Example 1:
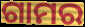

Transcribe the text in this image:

ଗାମର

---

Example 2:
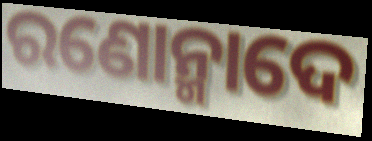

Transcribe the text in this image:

ରଣୋନ୍ମାଦେ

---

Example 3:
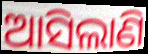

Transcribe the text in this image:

ଆସିଲାଣି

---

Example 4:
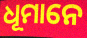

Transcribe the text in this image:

ଧୂମାନେ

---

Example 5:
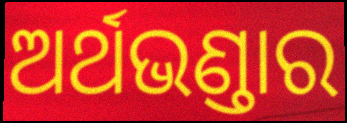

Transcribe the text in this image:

ଅର୍ଥଭଣ୍ଡାର